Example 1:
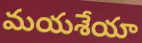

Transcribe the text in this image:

మయశేయా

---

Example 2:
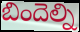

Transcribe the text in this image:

బిందెల్ని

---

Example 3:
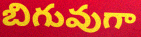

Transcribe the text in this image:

బిగువుగా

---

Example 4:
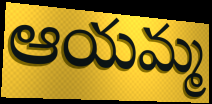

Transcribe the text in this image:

ఆయమ్మ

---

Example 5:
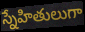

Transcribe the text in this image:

స్నేహితులుగా